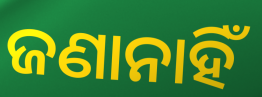
ଜଣାନାହିଁ